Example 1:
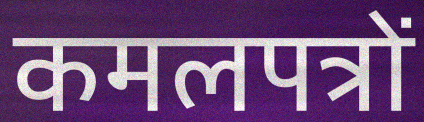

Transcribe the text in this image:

कमलपत्रों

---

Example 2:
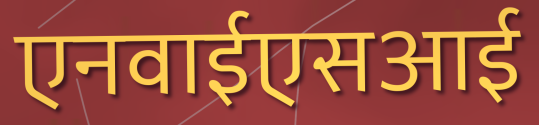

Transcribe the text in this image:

एनवाईएसआई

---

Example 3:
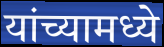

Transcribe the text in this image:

यांच्यामध्ये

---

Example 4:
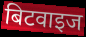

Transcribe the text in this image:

बिटवाइज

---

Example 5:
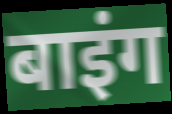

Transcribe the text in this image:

बाइंग